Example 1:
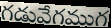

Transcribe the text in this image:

గడువేగముగ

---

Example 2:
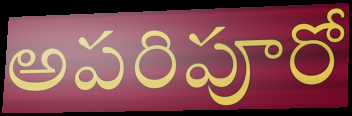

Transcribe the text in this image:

అపరిపూరో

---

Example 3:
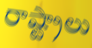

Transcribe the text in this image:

రాష్ట్రాలు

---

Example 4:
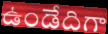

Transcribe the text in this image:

ఉండేదిగా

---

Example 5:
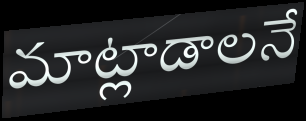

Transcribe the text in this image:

మాట్లాడాలనే